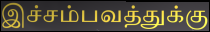
இச்சம்பவத்துக்கு